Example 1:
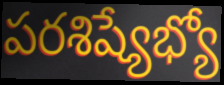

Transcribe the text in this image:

పరశిష్యేభ్యో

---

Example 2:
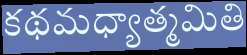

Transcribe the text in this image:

కథమధ్యాత్మమితి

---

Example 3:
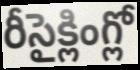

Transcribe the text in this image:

రీసైక్లింగ్లో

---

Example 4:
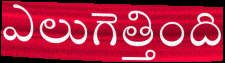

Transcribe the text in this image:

ఎలుగెత్తింది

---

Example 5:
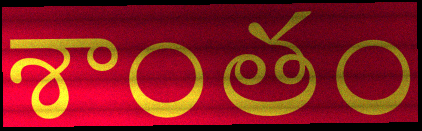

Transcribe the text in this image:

శాంతం